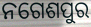
ନଗେଶପୁର